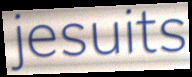
jesuits